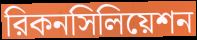
রিকনসিলিয়েশন